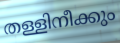
തള്ളിനീക്കും